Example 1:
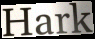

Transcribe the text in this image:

Hark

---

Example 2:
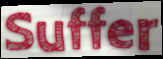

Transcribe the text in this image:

Suffer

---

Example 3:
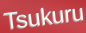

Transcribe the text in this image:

Tsukuru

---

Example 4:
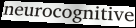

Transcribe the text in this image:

neurocognitive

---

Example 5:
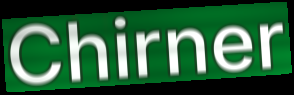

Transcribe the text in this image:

Chirner